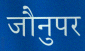
जौनुपर